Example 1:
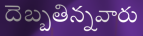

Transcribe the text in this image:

దెబ్బతిన్నవారు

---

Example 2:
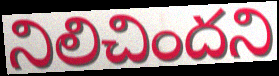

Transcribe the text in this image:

నిలిచిందని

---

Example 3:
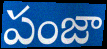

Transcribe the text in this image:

పంజా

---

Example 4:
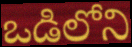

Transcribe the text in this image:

ఒడిలోని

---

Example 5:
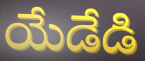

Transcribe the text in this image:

యేడేడి